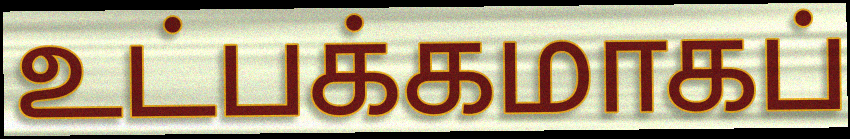
உட்பக்கமாகப்